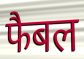
फैबल